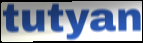
tutyan